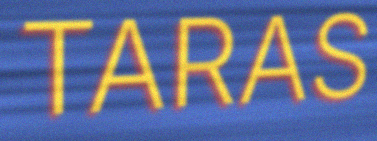
TARAS